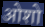
ओशो